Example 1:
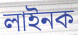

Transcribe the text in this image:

লাইনক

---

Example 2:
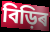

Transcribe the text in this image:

বিড়িৰ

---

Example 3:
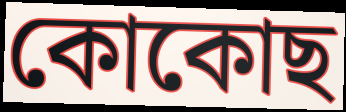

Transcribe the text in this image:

কোকোছ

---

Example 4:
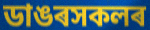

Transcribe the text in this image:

ডাঙৰসকলৰ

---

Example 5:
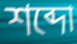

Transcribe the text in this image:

শব্দো